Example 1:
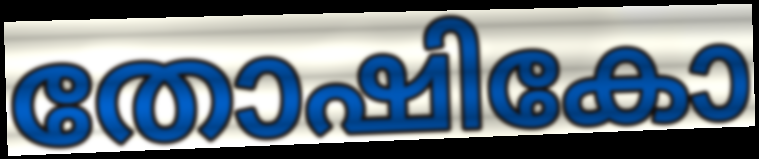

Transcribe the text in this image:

തോഷികോ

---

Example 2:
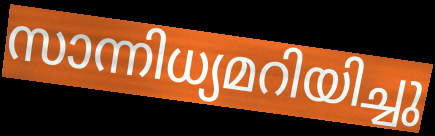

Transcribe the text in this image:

സാന്നിധ്യമറിയിച്ചു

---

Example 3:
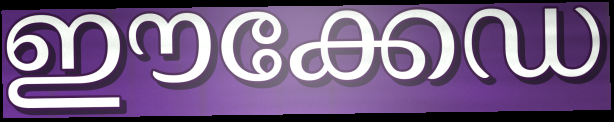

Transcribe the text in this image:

ഈക്കേഡ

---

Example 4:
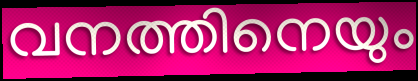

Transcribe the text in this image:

വനത്തിനെയും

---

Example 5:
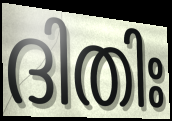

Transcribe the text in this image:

ദിതിഃ